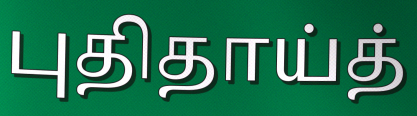
புதிதாய்த்